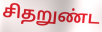
சிதறுண்ட